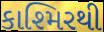
કાશ્મિરથી